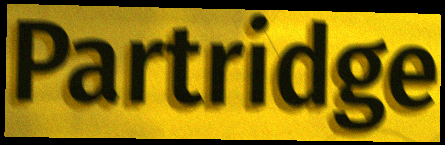
Partridge